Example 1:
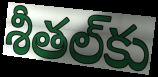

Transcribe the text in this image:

శీతల్‌కు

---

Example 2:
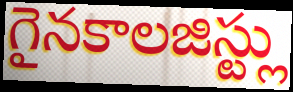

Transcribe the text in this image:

గైనకాలజిస్ట్లు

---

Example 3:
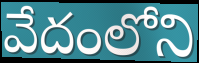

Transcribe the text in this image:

వేదంలోని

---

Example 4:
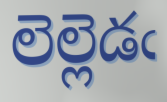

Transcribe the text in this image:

లెల్లెడఁ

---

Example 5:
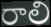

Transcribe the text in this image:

రాలి